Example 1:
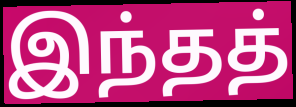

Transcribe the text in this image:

இந்தத்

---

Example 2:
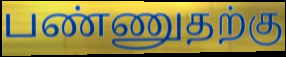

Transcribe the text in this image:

பண்ணுதற்கு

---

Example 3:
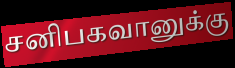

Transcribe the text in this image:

சனிபகவானுக்கு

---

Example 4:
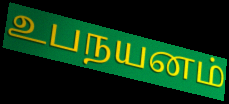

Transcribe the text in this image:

உபநயனம்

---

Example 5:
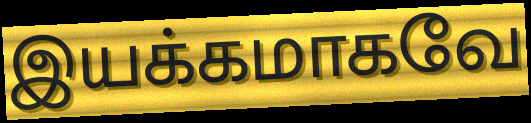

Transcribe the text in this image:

இயக்கமாகவே